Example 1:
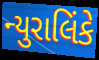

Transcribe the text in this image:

ન્યુરાલિંકે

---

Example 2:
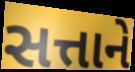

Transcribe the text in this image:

સત્તાને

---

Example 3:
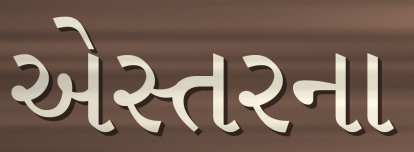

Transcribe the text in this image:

એસ્તરના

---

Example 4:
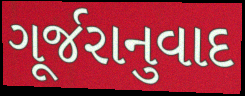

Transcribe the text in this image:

ગૂર્જરાનુવાદ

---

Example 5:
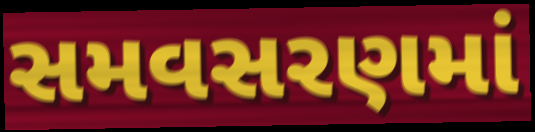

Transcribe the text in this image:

સમવસરણમાં